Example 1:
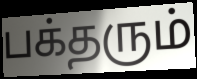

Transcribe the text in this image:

பக்தரும்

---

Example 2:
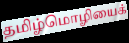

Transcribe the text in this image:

தமிழ்மொழியைக்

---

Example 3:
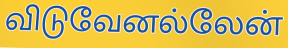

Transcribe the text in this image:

விடுவேனல்லேன்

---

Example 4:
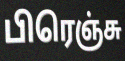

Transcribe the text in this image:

பிரெஞ்சு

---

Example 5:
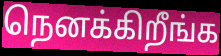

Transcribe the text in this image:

நெனக்கிறீங்க